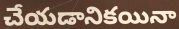
చేయడానికయినా